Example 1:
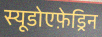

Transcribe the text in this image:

स्यूडोएफ़ेड्रिन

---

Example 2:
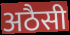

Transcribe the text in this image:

अठैसी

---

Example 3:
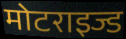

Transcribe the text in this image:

मोटराइज्ड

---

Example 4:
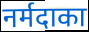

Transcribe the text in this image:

नर्मदाका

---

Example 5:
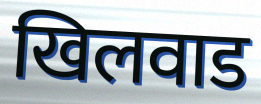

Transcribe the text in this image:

खिलवाड